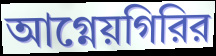
আগ্নেয়গিরির